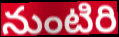
నుంటిరి